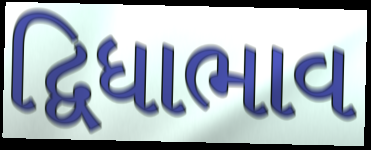
દ્વિધાભાવ